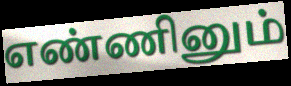
எண்ணினும்